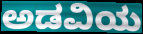
ಅಡವಿಯ